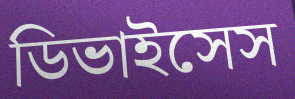
ডিভাইসেস